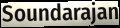
Soundarajan